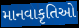
માનવાકૃતિઓ